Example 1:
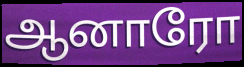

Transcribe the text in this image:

ஆனாரோ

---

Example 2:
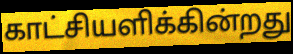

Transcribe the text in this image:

காட்சியளிக்கின்றது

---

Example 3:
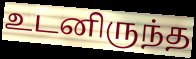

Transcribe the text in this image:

உடனிருந்த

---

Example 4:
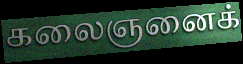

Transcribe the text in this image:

கலைஞனைக்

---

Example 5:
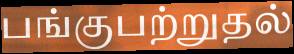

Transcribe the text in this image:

பங்குபற்றுதல்